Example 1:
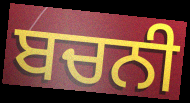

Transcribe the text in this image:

ਬਚਨੀ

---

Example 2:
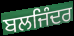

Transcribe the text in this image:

ਬਲਜਿੰਦਰ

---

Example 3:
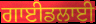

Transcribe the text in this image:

ਗਾਈਡਲਾਈ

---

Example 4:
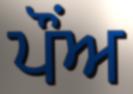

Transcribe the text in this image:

ਪੌਂਅ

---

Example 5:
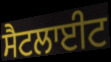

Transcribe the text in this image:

ਸੈਟਲਾਈਟ